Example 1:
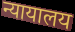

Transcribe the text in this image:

न्यायालय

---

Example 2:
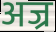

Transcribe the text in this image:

अज्र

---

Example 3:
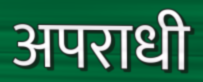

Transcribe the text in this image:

अपराधी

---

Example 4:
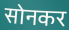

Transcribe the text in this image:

सोनकर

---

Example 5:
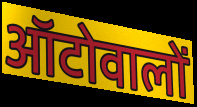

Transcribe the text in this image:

ऑटोवालों